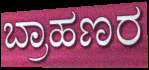
ಬ್ರಾಹಣರ